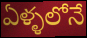
ఏళ్ళలోనే